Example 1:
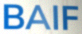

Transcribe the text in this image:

BAIF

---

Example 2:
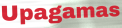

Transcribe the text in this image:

Upagamas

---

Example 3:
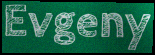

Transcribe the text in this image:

Evgeny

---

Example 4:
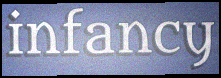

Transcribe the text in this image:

infancy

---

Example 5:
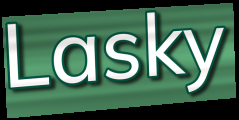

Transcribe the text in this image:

Lasky